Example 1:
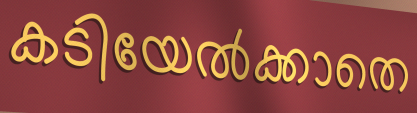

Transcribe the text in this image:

കടിയേൽക്കാതെ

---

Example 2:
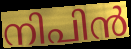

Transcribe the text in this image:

നിപിൻ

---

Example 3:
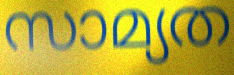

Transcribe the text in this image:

സാമ്യത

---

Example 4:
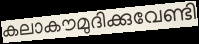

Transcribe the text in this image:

കലാകൗമുദിക്കുവേണ്ടി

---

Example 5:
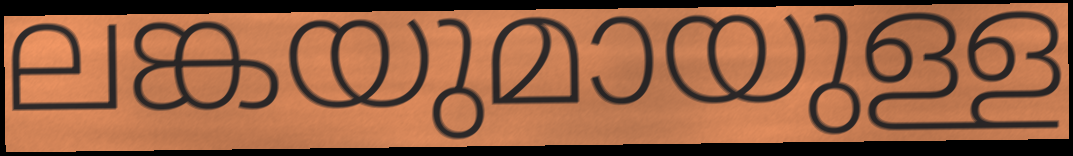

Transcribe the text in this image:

ലങ്കയുമായുള്ള